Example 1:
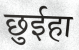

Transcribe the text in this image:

छुईहा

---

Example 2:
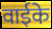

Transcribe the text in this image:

वाईके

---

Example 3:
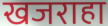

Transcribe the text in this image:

खजराहा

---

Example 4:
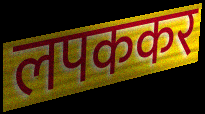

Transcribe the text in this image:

लपककर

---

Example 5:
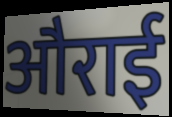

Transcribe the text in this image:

औराई